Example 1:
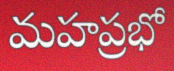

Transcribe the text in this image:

మహప్రభో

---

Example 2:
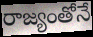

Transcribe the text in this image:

రాజ్యంతోనే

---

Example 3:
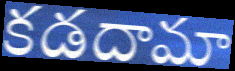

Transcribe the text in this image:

కడదామా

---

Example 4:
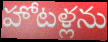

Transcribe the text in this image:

హోటళ్లను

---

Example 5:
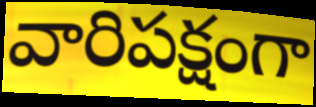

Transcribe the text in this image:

వారిపక్షంగా